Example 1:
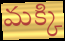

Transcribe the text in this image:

మక్కి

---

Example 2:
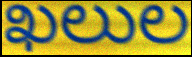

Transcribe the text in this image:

ఖలుల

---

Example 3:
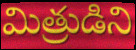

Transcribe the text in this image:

మిత్రుడిని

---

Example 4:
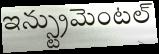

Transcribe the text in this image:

ఇన్స్ట్రుమెంటల్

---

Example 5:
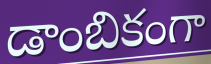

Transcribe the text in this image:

డాంబికంగా